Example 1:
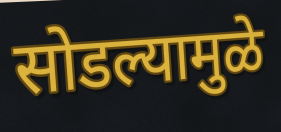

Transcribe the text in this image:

सोडल्यामुळे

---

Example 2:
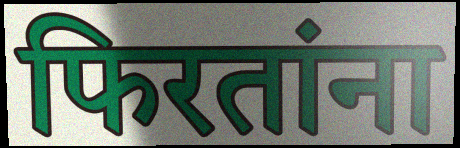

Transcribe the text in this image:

फिरतांना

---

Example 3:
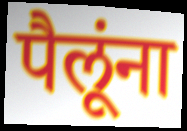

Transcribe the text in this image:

पैलूंना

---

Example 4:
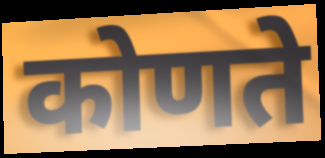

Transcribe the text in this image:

कोणते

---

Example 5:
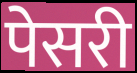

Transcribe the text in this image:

पेसरी